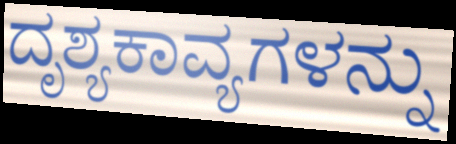
ದೃಶ್ಯಕಾವ್ಯಗಳನ್ನು